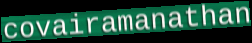
covairamanathan